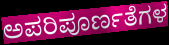
ಅಪರಿಪೂರ್ಣತೆಗಳ